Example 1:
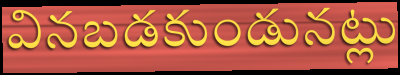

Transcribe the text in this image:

వినబడకుండునట్లు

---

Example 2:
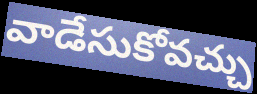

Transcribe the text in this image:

వాడేసుకోవచ్చు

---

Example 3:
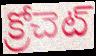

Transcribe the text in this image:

క్రోచెట్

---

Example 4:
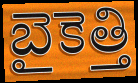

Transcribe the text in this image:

బైకెత్తి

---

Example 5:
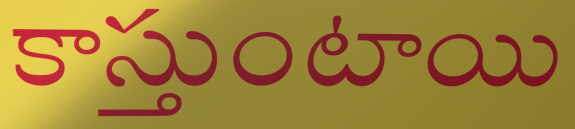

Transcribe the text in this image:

కాస్తుంటాయి